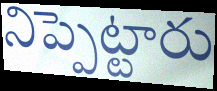
నిప్పెట్టారు